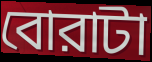
বোরাটা